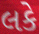
લકે